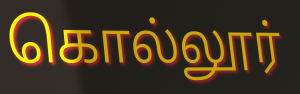
கொல்லூர்